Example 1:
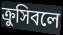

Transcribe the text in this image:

ক্রুসিবলে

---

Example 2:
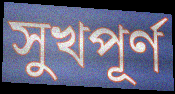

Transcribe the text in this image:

সুখপূর্ণ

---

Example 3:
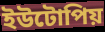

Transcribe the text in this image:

ইউটোপিয়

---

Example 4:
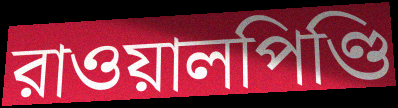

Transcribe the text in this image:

রাওয়ালপিণ্ডি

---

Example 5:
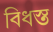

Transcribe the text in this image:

বিধস্ত